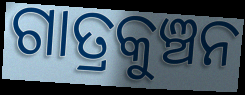
ଗାତ୍ରକୁଞ୍ଚନ